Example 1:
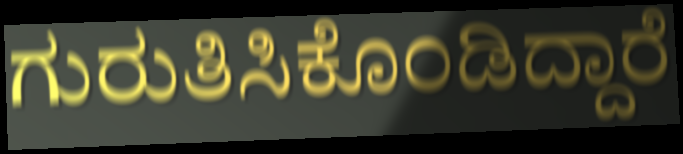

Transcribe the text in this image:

ಗುರುತಿಸಿಕೊಂಡಿದ್ದಾರೆ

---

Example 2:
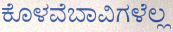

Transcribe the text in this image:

ಕೊಳವೆಬಾವಿಗಳೆಲ್ಲ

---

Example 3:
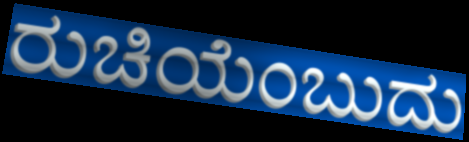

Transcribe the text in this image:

ರುಚಿಯೆಂಬುದು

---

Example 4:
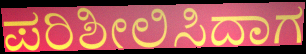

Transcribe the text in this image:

ಪರಿಶೀಲಿಸಿದಾಗ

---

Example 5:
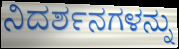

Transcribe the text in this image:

ನಿದರ್ಶನಗಳನ್ನು